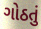
ગોઠતું